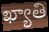
ఖ్యాతి